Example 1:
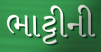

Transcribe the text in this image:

ભાટ્ટીની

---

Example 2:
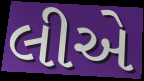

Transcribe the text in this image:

લીએ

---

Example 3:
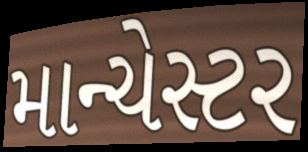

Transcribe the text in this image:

માન્ચેસ્ટર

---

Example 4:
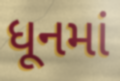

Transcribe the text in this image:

ધૂનમાં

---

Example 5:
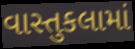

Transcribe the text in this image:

વાસ્તુકલામાં